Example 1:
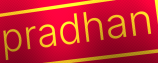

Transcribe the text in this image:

pradhan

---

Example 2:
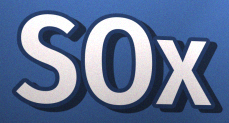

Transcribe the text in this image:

SOx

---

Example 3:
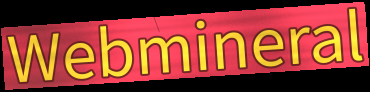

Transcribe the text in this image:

Webmineral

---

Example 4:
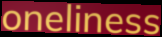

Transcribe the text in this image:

oneliness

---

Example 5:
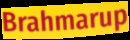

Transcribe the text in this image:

Brahmarup